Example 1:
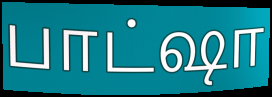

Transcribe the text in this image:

பாட்ஷா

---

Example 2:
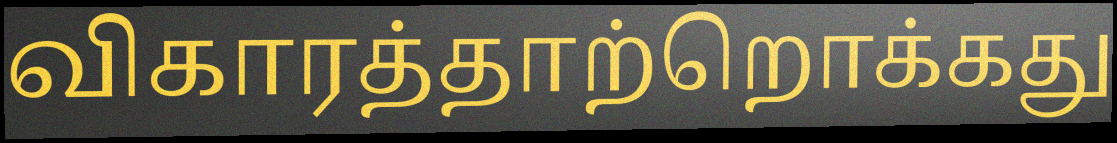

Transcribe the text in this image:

விகாரத்தாற்றொக்கது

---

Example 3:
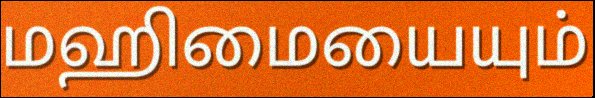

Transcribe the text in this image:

மஹிமையையும்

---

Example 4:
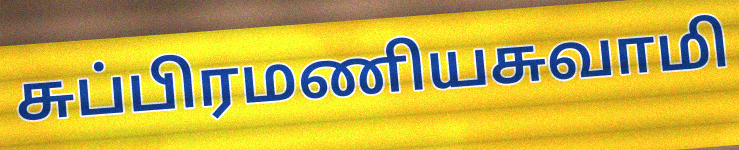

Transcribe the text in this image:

சுப்பிரமணியசுவாமி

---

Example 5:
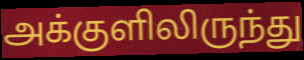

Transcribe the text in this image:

அக்குளிலிருந்து